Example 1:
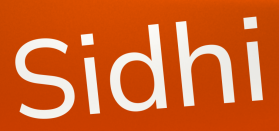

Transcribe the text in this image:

Sidhi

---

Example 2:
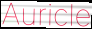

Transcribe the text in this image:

Auricle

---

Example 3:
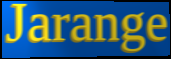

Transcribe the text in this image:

Jarange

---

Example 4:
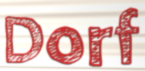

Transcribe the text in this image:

Dorf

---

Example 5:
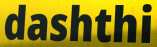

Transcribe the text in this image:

dashthi